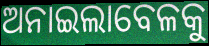
ଅନାଇଲାବେଳକୁ